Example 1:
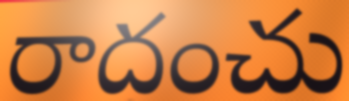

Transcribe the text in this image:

రాదంచు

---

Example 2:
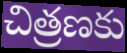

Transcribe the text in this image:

చిత్రణకు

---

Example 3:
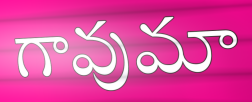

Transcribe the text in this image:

గావుమా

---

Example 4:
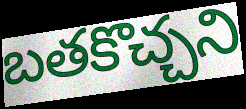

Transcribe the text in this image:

బతకొచ్చని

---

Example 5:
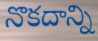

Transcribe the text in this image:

నొకదాన్ని